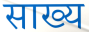
साख्य